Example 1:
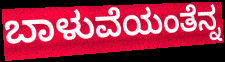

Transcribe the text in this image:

ಬಾಳುವೆಯಂತೆನ್ನ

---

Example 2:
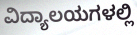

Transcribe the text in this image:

ವಿದ್ಯಾಲಯಗಳಲ್ಲಿ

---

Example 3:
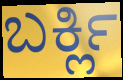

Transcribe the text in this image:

ಬರ್ಕ್ಲಿ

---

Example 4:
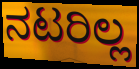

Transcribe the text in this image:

ನಟರಿಲ್ಲ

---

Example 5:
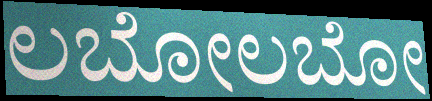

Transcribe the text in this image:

ಲಬೋಲಬೋ